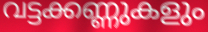
വട്ടക്കണ്ണുകളും